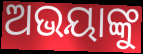
ଅଭୟାଙ୍କୁ